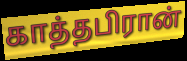
காத்தபிரான்